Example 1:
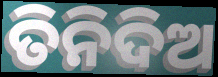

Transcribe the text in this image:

ତିନିଦିଅ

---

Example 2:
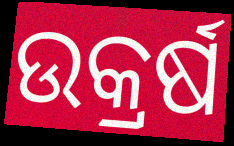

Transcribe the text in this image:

ଉକ୍ରର୍ଷ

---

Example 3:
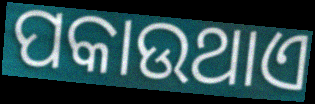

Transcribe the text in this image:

ପକାଉଥାଏ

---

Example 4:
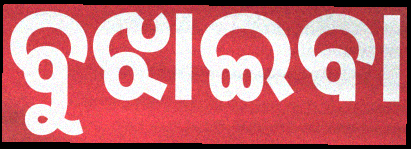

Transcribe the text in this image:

ବୁଝାଇବା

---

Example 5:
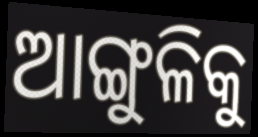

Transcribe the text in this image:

ଆଙ୍ଗୁଳିକୁ